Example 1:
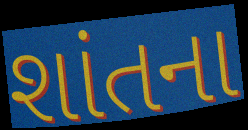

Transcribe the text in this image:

શાંતના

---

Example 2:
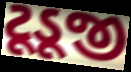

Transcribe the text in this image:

ટૂડૂજી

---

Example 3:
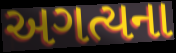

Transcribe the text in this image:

અગત્યના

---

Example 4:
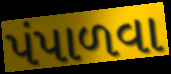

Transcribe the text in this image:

પંપાળવા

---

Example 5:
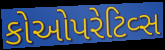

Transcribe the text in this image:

કોઓપરેટિવ્સ